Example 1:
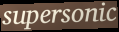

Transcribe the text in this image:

supersonic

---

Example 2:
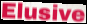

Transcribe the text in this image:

Elusive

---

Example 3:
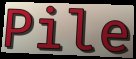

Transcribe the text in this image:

Pile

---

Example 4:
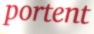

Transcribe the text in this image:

portent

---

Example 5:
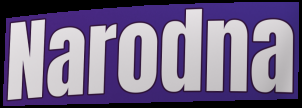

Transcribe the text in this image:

Narodna